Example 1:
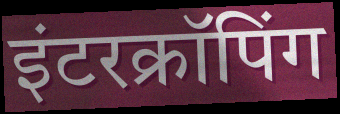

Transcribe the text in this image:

इंटरक्रॉपिंग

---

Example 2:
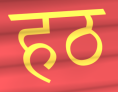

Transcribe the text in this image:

हठ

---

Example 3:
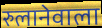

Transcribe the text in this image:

रुलानेवाला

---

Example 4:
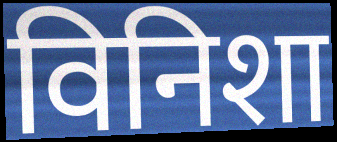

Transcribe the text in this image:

विनिशा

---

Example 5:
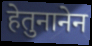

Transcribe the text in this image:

हेतुनानेन